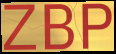
ZBP